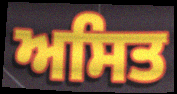
ਅਸਿਤ